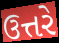
ઉત્તરે